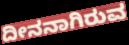
ದೀನನಾಗಿರುವ